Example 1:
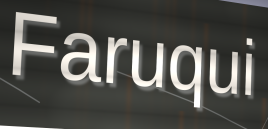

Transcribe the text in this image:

Faruqui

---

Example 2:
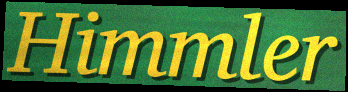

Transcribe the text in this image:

Himmler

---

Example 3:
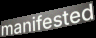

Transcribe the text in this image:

manifested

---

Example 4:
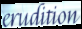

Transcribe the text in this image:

erudition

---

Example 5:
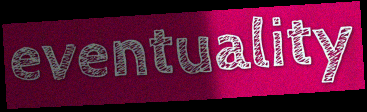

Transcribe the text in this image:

eventuality